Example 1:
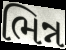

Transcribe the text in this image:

ભિન્ન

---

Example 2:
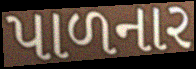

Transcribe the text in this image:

પાળનાર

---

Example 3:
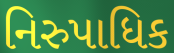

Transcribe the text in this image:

નિરુપાધિક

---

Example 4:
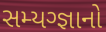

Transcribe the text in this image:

સમ્યગ્જ્ઞાનો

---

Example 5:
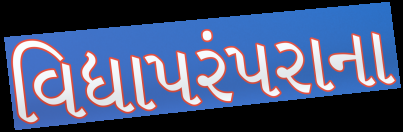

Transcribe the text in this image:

વિદ્યાપરંપરાના